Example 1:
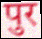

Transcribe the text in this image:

पुर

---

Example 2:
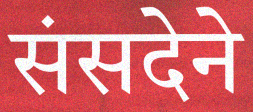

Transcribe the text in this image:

संसदेने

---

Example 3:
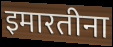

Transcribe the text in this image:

इमारतीना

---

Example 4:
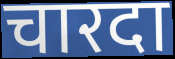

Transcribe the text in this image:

चारदा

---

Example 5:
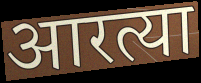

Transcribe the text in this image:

आरत्या